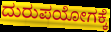
ದುರುಪಯೋಗಕ್ಕೆ